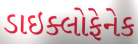
ડાઇક્લોફેનેક